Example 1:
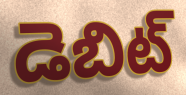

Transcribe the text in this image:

డెబిట్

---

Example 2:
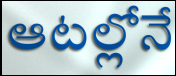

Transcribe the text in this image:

ఆటల్లోనే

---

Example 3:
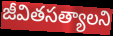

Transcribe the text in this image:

జీవితసత్యాలని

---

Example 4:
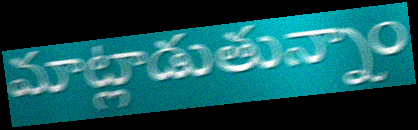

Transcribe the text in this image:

మాట్లాడుతున్నాం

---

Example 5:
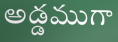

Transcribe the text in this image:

అడ్డముగా